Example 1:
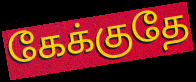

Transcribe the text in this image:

கேக்குதே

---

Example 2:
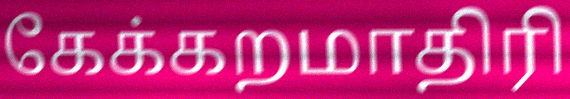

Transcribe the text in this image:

கேக்கறமாதிரி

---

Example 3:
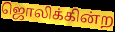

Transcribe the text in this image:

ஜொலிக்கின்ற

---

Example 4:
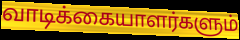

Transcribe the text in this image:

வாடிக்கையாளர்களும்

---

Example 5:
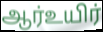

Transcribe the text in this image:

ஆர்உயிர்